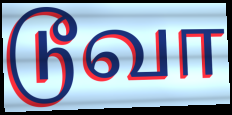
டூவா